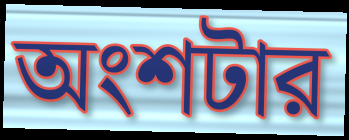
অংশটার